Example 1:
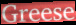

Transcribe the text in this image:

Greese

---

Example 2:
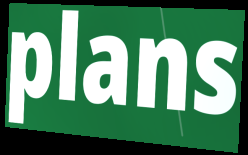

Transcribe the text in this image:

plans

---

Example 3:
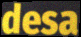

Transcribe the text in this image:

desa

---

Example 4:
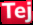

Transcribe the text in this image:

Tej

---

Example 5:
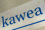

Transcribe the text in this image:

kawea